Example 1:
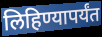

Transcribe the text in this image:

लिहिण्यापर्यंत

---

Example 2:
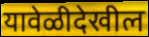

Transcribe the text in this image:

यावेळीदेखील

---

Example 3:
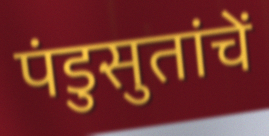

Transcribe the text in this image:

पंडुसुतांचें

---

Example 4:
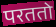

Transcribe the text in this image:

परततो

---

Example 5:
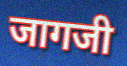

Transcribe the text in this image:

जागजी